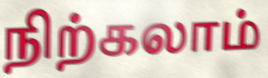
நிற்கலாம்